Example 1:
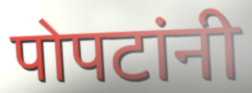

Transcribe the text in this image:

पोपटांनी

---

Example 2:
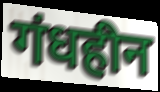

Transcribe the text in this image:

गंधहीन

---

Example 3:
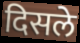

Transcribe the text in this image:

दिसले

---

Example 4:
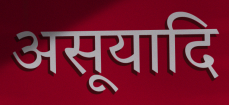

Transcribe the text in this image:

असूयादि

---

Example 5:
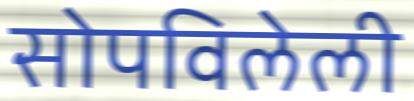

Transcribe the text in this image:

सोपविलेली